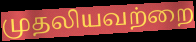
முதலியவற்றை